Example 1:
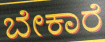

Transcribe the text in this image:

ಬೇಕಾರೆ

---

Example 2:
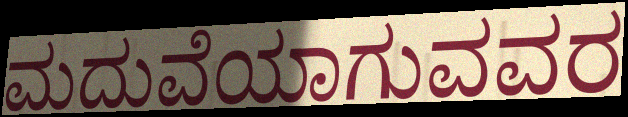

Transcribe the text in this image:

ಮದುವೆಯಾಗುವವರ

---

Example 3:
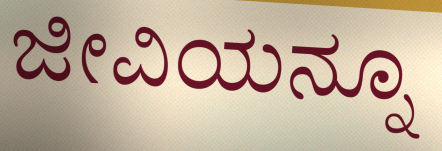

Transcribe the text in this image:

ಜೀವಿಯನ್ನೂ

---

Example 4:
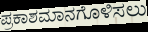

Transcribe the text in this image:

ಪ್ರಕಾಶಮಾನಗೊಳಿಸಲು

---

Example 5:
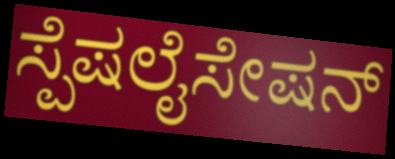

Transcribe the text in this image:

ಸ್ಪೆಷಲೈಸೇಷನ್